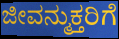
ಜೀವನ್ಮುಕ್ತರಿಗೆ